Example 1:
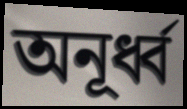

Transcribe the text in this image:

অনূর্ধ্ব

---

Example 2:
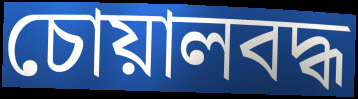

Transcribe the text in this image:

চোয়ালবদ্ধ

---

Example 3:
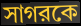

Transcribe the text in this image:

সাগরকে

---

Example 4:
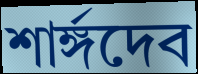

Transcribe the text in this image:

শার্ঙ্গদেব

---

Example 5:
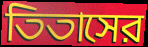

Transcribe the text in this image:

তিতাসের